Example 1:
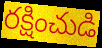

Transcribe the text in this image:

రక్షించుడి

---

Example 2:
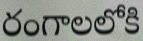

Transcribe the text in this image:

రంగాలలోకి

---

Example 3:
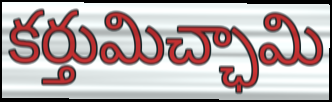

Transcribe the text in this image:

కర్తుమిచ్ఛామి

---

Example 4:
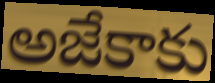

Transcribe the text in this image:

అజేకాకు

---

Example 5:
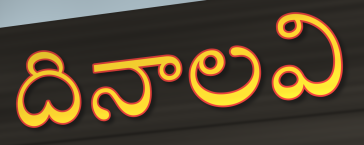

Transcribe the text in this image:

దినాలవి